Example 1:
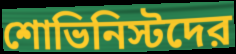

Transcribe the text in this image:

শোভিনিস্টদের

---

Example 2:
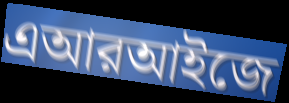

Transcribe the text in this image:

এআরআইজে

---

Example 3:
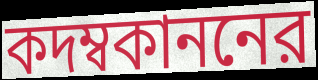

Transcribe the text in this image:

কদম্বকাননের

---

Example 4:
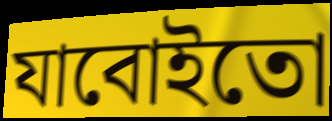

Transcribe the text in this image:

যাবোইতো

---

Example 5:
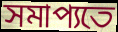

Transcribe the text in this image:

সমাপ্যতে